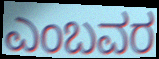
ಎಂಬವರ